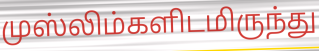
முஸ்லிம்களிடமிருந்து